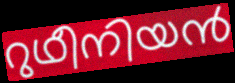
റുഥീനിയൻ